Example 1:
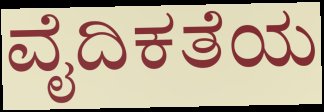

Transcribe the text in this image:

ವೈದಿಕತೆಯ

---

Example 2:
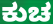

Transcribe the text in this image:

ಕುಚ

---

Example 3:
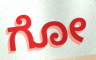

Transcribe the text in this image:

ಗೋ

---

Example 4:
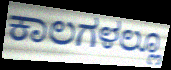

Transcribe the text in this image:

ಕಾಲಗಳಲ್ಲೂ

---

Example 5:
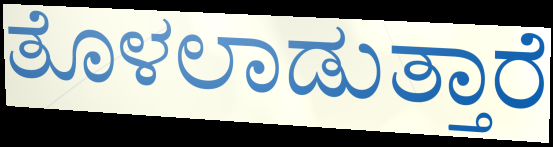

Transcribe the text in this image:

ತೊಳಲಾಡುತ್ತಾರೆ